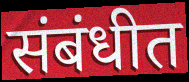
संबंधीत